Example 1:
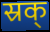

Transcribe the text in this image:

स्रक्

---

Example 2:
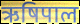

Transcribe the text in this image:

ऋषिपाल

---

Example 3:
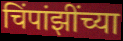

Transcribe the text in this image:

चिंपांझींच्या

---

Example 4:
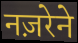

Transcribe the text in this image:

नज़रेने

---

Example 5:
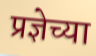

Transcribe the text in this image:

प्रज्ञेच्या